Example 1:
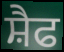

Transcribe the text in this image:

ਸ਼ੈਫ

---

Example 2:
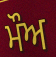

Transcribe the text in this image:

ਮੌਅ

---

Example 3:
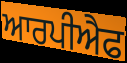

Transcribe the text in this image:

ਆਰਪੀਐਫ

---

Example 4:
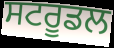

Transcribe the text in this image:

ਸਟਰੂਡਲ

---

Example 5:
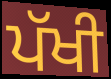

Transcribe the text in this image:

ਪੱਖੀ